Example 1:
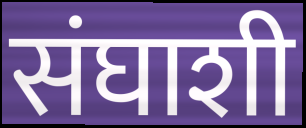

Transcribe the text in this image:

संघाशी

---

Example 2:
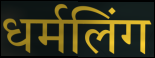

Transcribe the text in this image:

धर्मलिंग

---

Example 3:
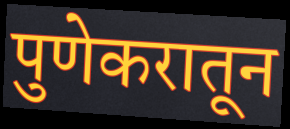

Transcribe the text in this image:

पुणेकरातून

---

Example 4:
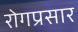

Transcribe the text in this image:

रोगप्रसार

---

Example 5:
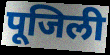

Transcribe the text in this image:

पूजिली